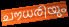
ചൗധരിയും